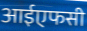
आईएफसी